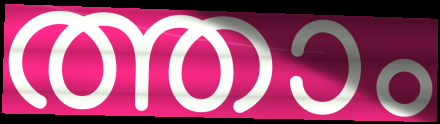
ത്താം